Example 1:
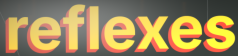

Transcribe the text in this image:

reflexes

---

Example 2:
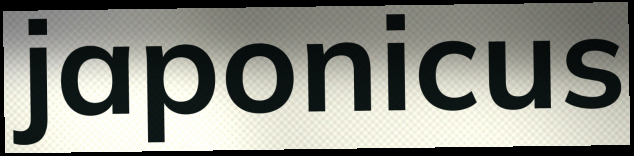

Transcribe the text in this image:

japonicus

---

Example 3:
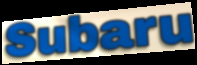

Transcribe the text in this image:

Subaru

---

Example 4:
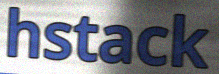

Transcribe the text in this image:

hstack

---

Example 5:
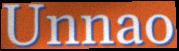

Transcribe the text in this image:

Unnao